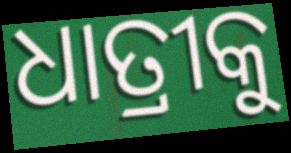
ଧାତ୍ରୀକୁ